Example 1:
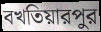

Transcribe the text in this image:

বখতিয়ারপুর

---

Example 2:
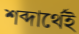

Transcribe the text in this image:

শব্দার্থেই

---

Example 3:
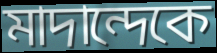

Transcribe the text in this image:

মাদান্দেকে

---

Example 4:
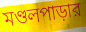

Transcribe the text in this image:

মণ্ডলপাড়ার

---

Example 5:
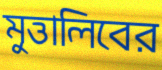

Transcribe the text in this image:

মুত্তালিবের